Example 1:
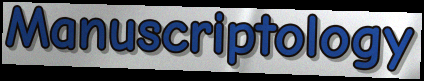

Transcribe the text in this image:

Manuscriptology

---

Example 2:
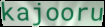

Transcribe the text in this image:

kajooru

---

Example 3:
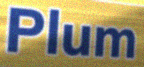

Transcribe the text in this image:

Plum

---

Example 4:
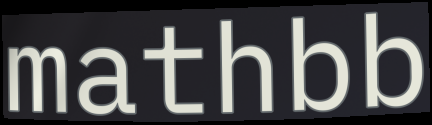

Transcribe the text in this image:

mathbb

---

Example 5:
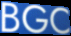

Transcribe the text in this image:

BGC